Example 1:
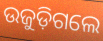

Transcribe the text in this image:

ଉଜୁଡ଼ିଗଲେ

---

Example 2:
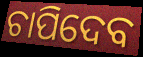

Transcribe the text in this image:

ଚାପିଦେବ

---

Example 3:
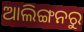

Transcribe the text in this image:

ଆଲିଙ୍ଗନରୁ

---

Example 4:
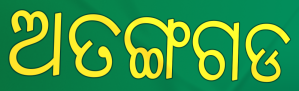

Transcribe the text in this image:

ଅତଙ୍ଗଗଡ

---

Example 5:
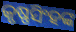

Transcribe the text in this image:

କୃଷ୍ଣସିଂହଙ୍କ